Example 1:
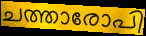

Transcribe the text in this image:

ചത്താരോപി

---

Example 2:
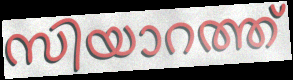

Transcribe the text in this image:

സിയാറത്ത്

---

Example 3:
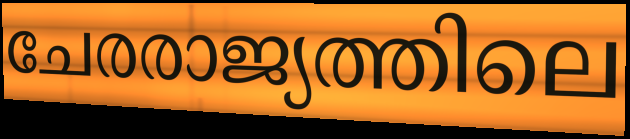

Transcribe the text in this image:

ചേരരാജ്യത്തിലെ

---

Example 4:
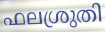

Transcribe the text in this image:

ഫലശ്രുതി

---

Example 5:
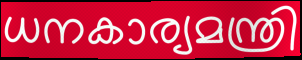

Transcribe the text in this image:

ധനകാര്യമന്ത്രി